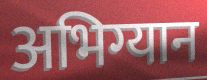
अभिग्यान